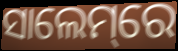
ସାଲେମ୍‌ରେ